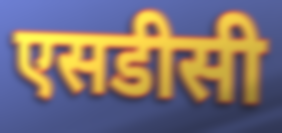
एसडीसी